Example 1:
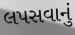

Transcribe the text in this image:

લપસવાનું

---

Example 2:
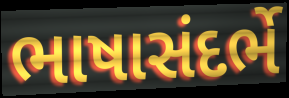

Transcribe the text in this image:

ભાષાસંદર્ભે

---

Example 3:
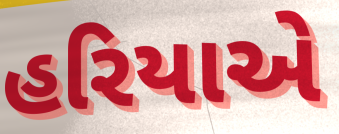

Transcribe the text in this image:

હરિયાએ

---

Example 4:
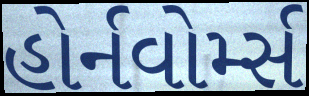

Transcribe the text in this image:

હોર્નવોર્મ્સ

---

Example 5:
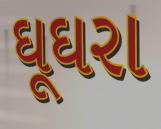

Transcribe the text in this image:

ઘૂઘરા